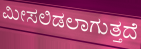
ಮೀಸಲಿಡಲಾಗುತ್ತದೆ